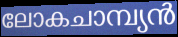
ലോകചാമ്പ്യൻ